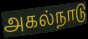
அகல்நாடு